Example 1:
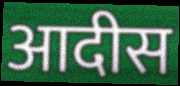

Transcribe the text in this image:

आदीस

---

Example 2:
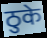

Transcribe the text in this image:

ठुके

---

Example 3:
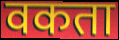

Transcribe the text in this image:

वकता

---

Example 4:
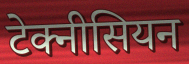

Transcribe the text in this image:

टेक्नीसियन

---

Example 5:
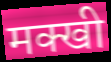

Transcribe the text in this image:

मक्खी